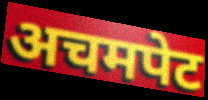
अचमपेट